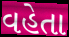
વહેતા